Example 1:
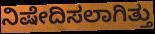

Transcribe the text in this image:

ನಿಷೇದಿಸಲಾಗಿತ್ತು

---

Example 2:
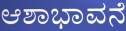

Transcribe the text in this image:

ಆಶಾಭಾವನೆ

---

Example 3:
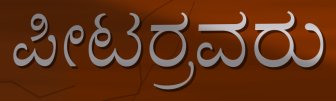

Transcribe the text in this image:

ಪೀಟರ್‍ರವರು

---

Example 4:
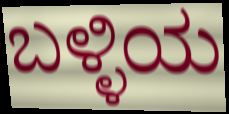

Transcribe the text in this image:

ಬಳ್ಳಿಯ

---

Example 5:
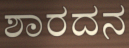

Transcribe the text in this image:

ಶಾರದನ